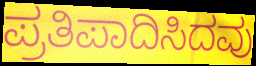
ಪ್ರತಿಪಾದಿಸಿದವು